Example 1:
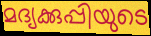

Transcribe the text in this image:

മദ്യക്കുപ്പിയുടെ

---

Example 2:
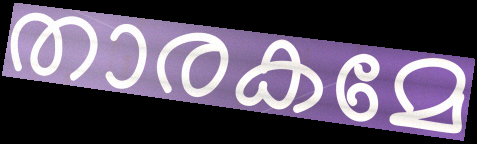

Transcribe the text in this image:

താരകമേ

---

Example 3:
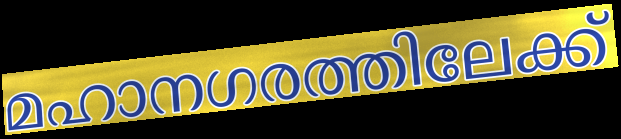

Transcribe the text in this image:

മഹാനഗരത്തിലേക്ക്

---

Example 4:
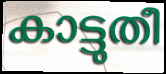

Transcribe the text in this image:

കാട്ടുതീ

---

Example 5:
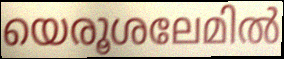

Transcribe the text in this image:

യെരൂശലേമിൽ